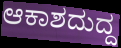
ಆಕಾಶದುದ್ದ